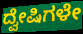
ದ್ವೇಷಿಗಳೇ